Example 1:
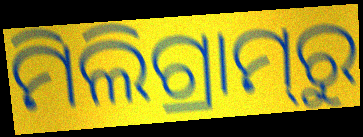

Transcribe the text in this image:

ମିଲିଗ୍ରାମ୍‌ରୁ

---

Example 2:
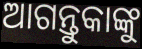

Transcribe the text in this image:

ଆଗନ୍ତୁକାଙ୍କୁ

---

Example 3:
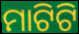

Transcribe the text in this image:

ମାଟିଟି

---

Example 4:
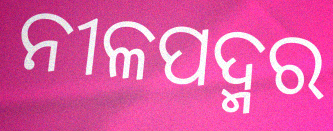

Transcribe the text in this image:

ନୀଳପଦ୍ମର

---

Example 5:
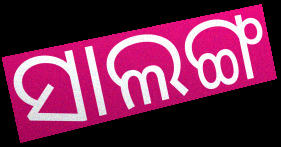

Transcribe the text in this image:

ସାଲଙ୍ଗ